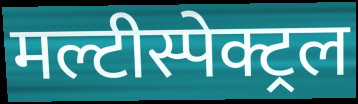
मल्टीस्पेक्ट्रल